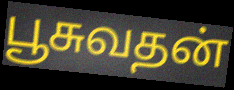
பூசுவதன்